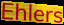
Ehlers